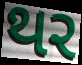
થર